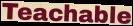
Teachable